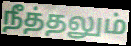
நீத்தலும்